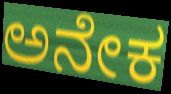
ಅನೇಕ